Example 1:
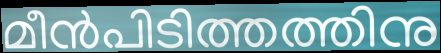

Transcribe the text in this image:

മീൻപിടിത്തത്തിനു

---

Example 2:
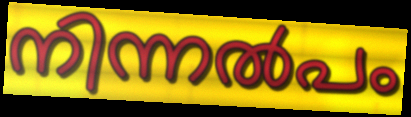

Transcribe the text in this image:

നിന്നൽപം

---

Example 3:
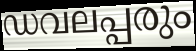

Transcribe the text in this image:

ഡവലപ്പരും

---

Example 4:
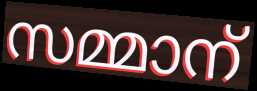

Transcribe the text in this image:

സമ്മാന്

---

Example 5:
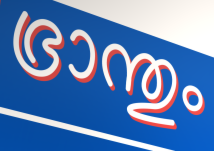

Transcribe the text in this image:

ഭ്രാന്തും